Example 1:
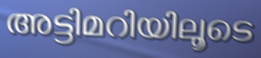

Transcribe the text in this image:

അട്ടിമറിയിലൂടെ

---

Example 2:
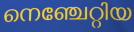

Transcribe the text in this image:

നെഞ്ചേറ്റിയ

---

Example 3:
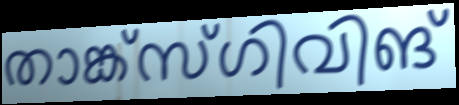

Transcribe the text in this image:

താങ്ക്സ്ഗിവിങ്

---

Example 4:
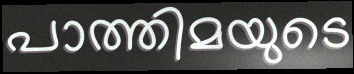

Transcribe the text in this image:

പാത്തിമയുടെ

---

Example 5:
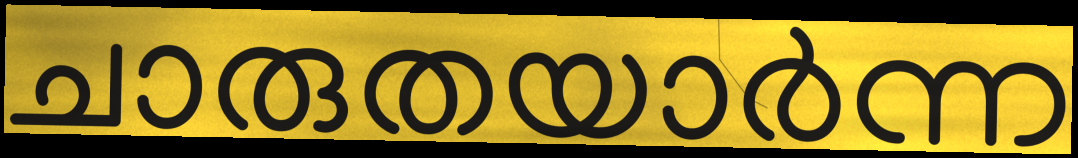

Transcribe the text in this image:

ചാരുതയാർന്ന